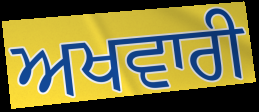
ਅਖਵਾਰੀ